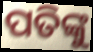
ପତିଙ୍କୁ